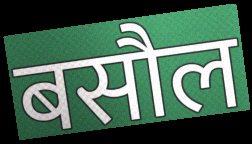
बसौल